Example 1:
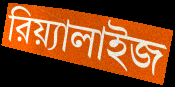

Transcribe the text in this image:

রিয়্যালাইজ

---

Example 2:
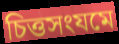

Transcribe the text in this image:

চিত্তসংযমে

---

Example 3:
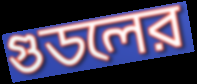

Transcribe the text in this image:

গুডলের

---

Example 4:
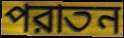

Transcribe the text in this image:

পরাতন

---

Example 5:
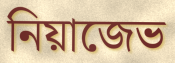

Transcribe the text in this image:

নিয়াজেভ